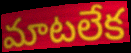
మాటలేక